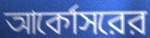
আর্কোসরের